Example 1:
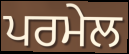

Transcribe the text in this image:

ਪਰਮੇਲ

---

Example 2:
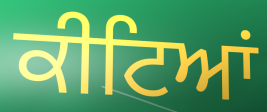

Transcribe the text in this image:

ਕੀਟਿਆਂ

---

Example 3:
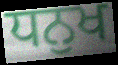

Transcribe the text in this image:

ਧਨੁਖ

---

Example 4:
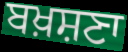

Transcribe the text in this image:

ਬਖ਼ਸ਼ਣਾ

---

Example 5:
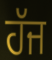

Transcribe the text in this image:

ਹੱਜ